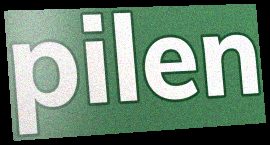
pilen